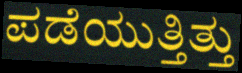
ಪಡೆಯುತ್ತಿತ್ತು